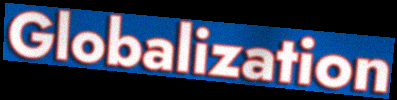
Globalization